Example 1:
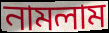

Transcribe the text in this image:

নামলাম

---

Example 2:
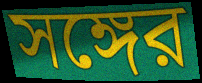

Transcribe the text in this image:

সঙ্গের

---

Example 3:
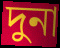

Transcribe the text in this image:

দুনা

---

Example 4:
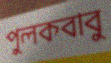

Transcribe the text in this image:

পুলকবাবু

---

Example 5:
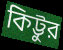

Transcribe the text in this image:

কিট্টুর